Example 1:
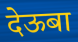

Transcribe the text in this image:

देऊबा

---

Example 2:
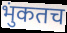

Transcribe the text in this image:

भुंकतच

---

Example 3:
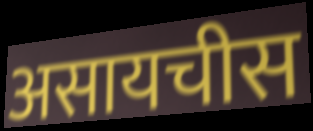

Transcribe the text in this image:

असायचीस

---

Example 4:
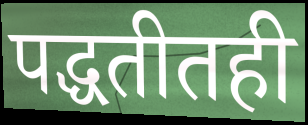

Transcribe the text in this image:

पद्धतीतही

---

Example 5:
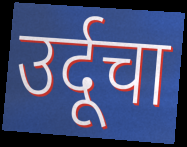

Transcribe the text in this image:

उर्दूचा